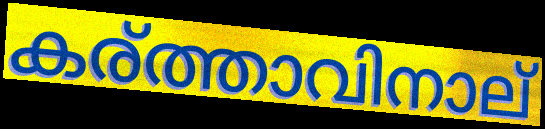
കര്ത്താവിനാല്